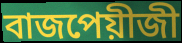
বাজপেয়ীজী